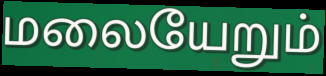
மலையேறும்